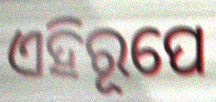
ଏହିରୂପେ